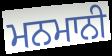
ਮਨਮਾਨੀ